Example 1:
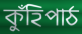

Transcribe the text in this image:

কুঁহিপাঠ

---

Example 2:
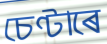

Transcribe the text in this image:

চেণ্টাৰে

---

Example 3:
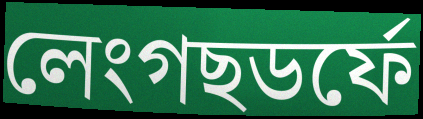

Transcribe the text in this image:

লেংগছডৰ্ফে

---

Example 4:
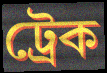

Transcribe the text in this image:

ট্ৰেক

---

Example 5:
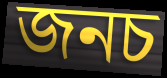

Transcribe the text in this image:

জনচ